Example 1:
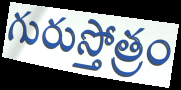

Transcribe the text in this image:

గురుస్తోత్రం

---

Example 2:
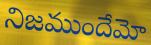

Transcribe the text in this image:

నిజముందేమో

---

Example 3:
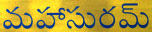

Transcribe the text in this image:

మహాసురమ్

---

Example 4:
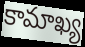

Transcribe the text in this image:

కామాఖ్య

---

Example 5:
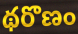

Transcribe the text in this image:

థరొణం